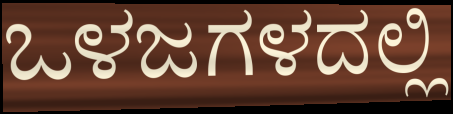
ಒಳಜಗಳದಲ್ಲಿ